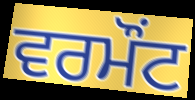
ਵਰਮੌਂਟ